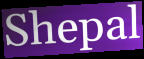
Shepal